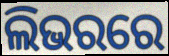
ଲିଭରରେ